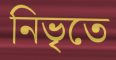
নিভৃতে